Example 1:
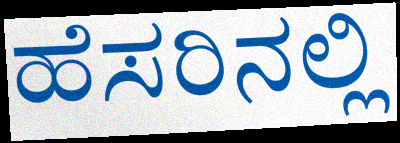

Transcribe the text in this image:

ಹೆಸರಿನಲ್ಲಿ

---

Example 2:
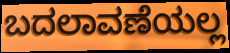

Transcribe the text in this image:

ಬದಲಾವಣೆಯಲ್ಲ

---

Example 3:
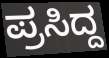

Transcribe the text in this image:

ಪ್ರಸಿದ್ದ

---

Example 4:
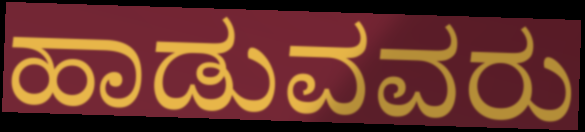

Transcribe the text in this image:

ಹಾಡುವವರು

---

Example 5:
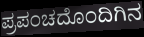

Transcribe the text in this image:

ಪ್ರಪಂಚದೊಂದಿಗಿನ